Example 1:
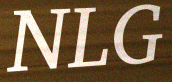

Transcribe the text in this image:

NLG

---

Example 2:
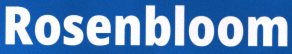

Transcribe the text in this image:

Rosenbloom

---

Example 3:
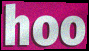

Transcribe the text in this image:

hoo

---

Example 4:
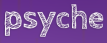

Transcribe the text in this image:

psyche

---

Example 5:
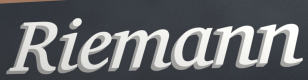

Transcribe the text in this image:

Riemann